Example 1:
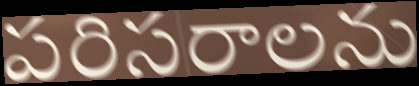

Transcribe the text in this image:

పరిసరాలను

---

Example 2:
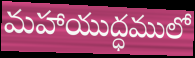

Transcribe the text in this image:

మహాయుద్ధములో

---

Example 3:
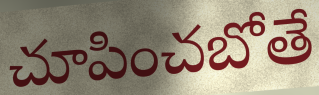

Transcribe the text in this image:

చూపించబోతే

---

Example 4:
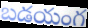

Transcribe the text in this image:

బడయంగ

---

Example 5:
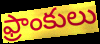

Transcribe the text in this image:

ఫ్రాంకులు